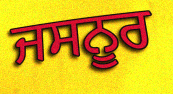
ਜਸਨੂਰ